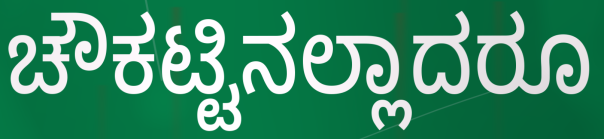
ಚೌಕಟ್ಟಿನಲ್ಲಾದರೂ